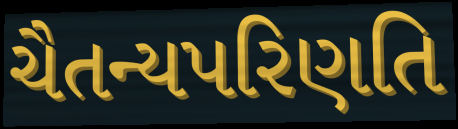
ચૈતન્યપરિણતિ